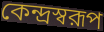
কেন্দ্রস্বরূপ